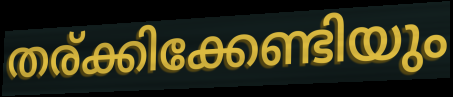
തര്ക്കിക്കേണ്ടിയും